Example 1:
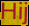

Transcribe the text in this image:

Hij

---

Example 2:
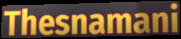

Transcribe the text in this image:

Thesnamani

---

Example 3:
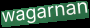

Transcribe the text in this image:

wagarnan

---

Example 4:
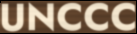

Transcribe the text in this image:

UNCCC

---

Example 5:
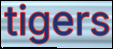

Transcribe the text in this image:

tigers